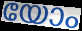
യോം